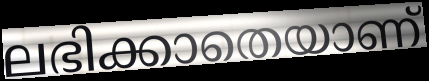
ലഭിക്കാതെയാണ്